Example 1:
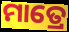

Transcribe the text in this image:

ମାତ୍ରେ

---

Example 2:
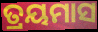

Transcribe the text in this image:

ତ୍ରୟମାସ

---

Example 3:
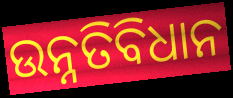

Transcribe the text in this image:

ଉନ୍ନତିବିଧାନ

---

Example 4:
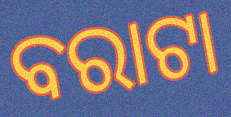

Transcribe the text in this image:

ବରାଟା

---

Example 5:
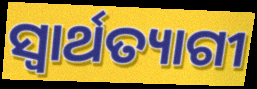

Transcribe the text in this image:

ସ୍ୱାର୍ଥତ୍ୟାଗୀ